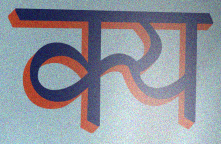
क्य